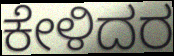
ಕೇಳಿದರ